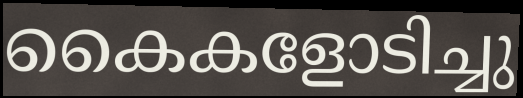
കൈകളോടിച്ചു